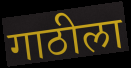
गाठीला